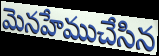
మెనహేముచేసిన